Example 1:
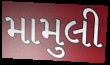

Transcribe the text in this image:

મામુલી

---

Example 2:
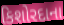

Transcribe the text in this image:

કિશોરદાના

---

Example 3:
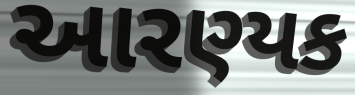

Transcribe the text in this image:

આરણ્યક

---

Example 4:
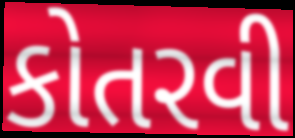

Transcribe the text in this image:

કોતરવી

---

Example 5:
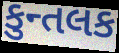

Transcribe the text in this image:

કુન્તલક